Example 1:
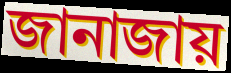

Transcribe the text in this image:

জানাজায়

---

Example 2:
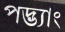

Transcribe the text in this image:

পদ্ভ্যাং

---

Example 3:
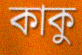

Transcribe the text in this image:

কাকু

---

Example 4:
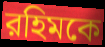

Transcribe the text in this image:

রহিমকে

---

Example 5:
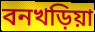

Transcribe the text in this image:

বনখড়িয়া